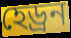
হেড্ৰন